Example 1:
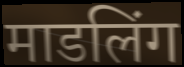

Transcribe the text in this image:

माडलिंग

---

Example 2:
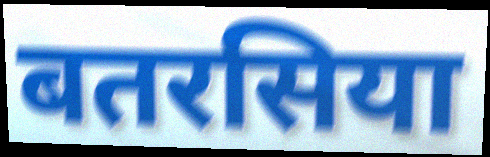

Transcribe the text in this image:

बतरसिया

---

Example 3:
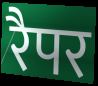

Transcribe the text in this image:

रैपर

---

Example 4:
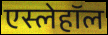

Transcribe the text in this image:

एस्लेहॉल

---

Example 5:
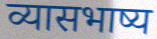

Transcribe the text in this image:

व्यासभाष्य